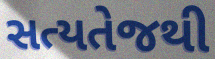
સત્યતેજથી